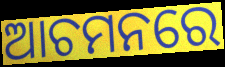
ଆଚମନରେ